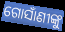
ଗୋସାଁଣୀଙ୍କୁ